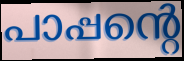
പാപ്പന്റെ